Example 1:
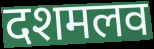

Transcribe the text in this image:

दशमलव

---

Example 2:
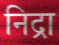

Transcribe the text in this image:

निद्रा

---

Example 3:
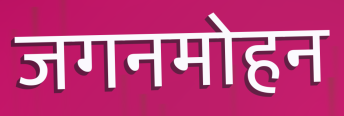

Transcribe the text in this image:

जगनमोहन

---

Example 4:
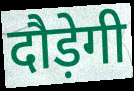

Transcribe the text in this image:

दौड़ेगी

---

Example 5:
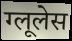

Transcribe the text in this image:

ग्लूलेस